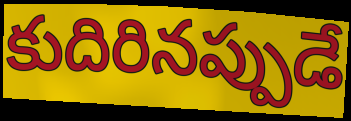
కుదిరినప్పుడే